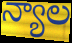
న్యాల